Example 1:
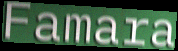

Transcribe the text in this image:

Famara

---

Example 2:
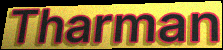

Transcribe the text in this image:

Tharman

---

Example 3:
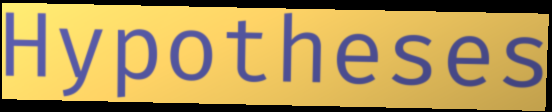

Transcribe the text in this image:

Hypotheses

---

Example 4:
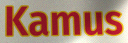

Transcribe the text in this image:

Kamus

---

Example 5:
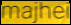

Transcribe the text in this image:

majhei